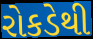
રોકડેથી